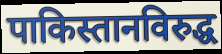
पाकिस्तानविरुद्ध